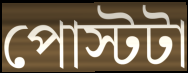
পোস্টটা